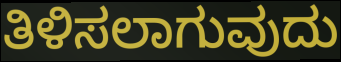
ತಿಳಿಸಲಾಗುವುದು